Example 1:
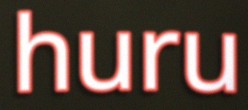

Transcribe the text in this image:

huru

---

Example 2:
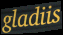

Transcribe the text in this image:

gladiis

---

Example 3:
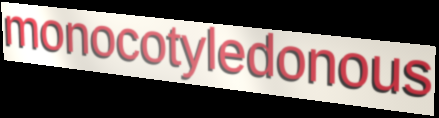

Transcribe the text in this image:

monocotyledonous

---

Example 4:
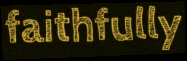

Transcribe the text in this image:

faithfully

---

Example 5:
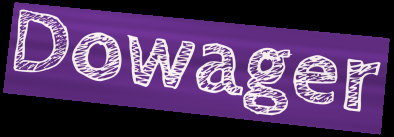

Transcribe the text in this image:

Dowager